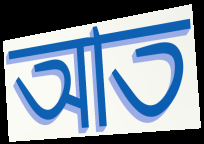
আত